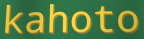
kahoto